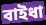
বাইধা